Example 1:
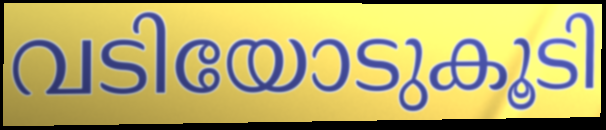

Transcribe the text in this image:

വടിയോടുകൂടി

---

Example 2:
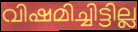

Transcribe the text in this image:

വിഷമിച്ചിട്ടില്ല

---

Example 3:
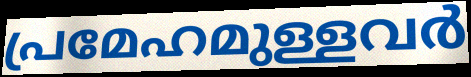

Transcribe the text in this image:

പ്രമേഹമുള്ളവർ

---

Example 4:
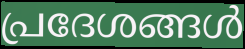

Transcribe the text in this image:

പ്രദേശങ്ങൾ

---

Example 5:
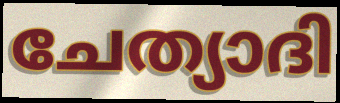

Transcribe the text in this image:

ചേത്യാദി